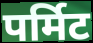
पर्मिट